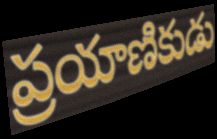
ప్రయాణికుడు